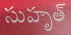
సుహృత్